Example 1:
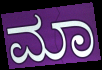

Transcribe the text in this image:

ಮಾ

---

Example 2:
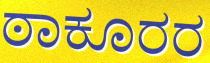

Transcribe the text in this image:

ಠಾಕೂರರ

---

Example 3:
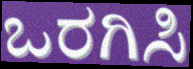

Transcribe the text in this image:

ಒರಗಿಸಿ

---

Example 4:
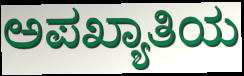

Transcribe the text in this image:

ಅಪಖ್ಯಾತಿಯ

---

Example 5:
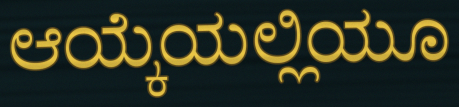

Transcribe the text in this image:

ಆಯ್ಕೆಯಲ್ಲಿಯೂ